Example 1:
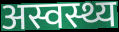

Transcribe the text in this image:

अस्वस्थ्य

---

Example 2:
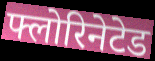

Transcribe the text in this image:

फ्लोरिनेटेड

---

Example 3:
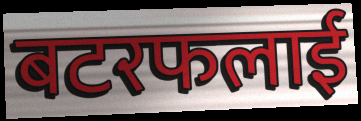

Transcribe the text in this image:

बटरफलाई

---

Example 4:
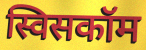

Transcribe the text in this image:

स्विसकॉम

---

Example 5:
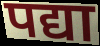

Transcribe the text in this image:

पद्या